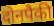
दोनपैकी